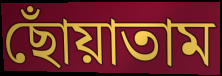
ছোঁয়াতাম